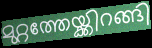
മുറ്റത്തേയ്ക്കിറങ്ങി